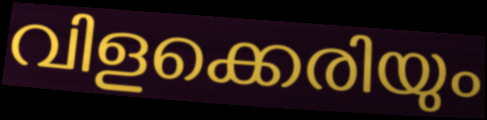
വിളക്കെരിയും